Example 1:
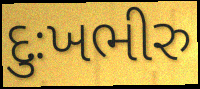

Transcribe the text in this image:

દુઃખભીરુ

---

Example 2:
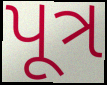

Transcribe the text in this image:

પૂત્ર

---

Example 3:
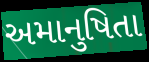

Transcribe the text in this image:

અમાનુષિતા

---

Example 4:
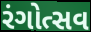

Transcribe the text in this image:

રંગોત્સવ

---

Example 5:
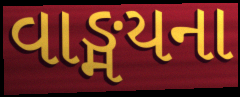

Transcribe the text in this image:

વાઙ્મયના